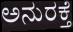
ಅನುರಕ್ತೆ